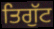
ਤਿਗੁੱਟ